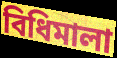
বিধিমালা